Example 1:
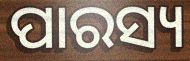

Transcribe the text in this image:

ପାରସ୍ୟ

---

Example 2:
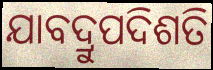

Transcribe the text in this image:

ଯାବଦ୍ରୁପଦିଶତି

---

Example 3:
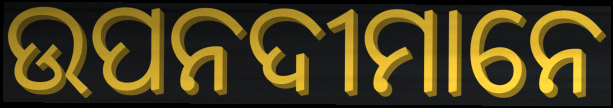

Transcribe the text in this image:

ଉପନଦୀମାନେ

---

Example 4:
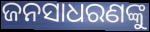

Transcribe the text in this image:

ଜନସାଧରଣଙ୍କୁ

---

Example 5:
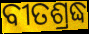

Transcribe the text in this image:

ବୀତଶ୍ରଦ୍ଧ